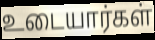
உடையார்கள்